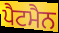
ਪੈਟਮੈਨ